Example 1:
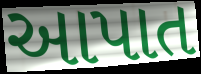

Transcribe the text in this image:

આપાત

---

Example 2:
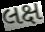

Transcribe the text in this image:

લક્ષ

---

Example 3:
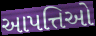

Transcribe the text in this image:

આપત્તિઓ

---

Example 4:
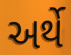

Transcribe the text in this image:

અર્થે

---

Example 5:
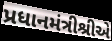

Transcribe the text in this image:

પ્રધાનમંત્રીશ્રીએ